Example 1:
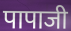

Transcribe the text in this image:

पापाजी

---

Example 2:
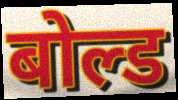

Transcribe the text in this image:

बोल्ड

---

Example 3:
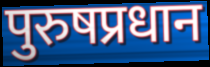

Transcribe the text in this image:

पुरुषप्रधान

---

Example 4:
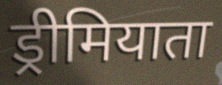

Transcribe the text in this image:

ड्रीमियाता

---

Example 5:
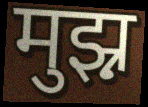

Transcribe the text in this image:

मुझ्न